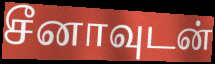
சீனாவுடன்